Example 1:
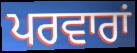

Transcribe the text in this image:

ਪਰਵਾਰਾਂ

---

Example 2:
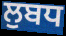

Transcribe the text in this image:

ਲੁਬਧ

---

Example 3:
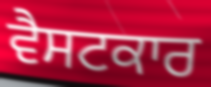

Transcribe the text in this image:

ਵੈਸਟਕਾਰ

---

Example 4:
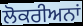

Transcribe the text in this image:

ਲੋਕਰੀਅਨਾਂ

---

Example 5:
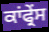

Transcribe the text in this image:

ਕਾਂਫ੍ਰੇਂਸ